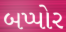
બપ્પોર